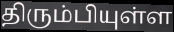
திரும்பியுள்ள